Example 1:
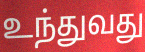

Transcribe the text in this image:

உந்துவது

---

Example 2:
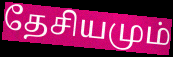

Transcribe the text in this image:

தேசியமும்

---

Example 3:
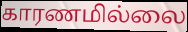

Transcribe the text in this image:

காரணமில்லை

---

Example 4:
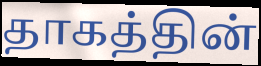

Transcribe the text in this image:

தாகத்தின்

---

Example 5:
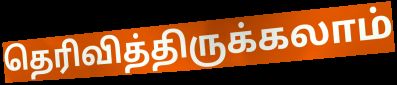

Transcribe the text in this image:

தெரிவித்திருக்கலாம்